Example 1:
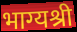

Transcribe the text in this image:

भाग्यश्री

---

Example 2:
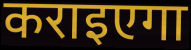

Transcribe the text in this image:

कराइएगा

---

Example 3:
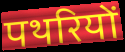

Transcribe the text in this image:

पथरियों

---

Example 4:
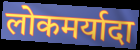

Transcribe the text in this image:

लोकमर्यादा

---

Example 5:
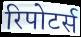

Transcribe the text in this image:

रिपोटर्स